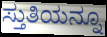
ಸ್ತುತಿಯನ್ನೂ